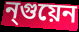
ন্গুয়েন